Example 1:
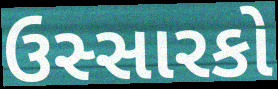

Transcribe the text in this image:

ઉસ્સારકો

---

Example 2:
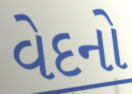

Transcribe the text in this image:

વેદનો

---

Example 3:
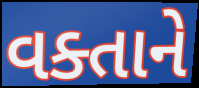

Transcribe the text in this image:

વક્તાને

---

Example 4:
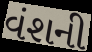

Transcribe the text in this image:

વંશની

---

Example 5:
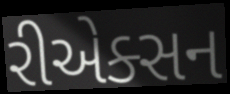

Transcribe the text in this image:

રીએક્સન